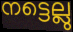
നട്ടെല്ലു